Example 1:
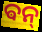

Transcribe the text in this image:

ଵନ୍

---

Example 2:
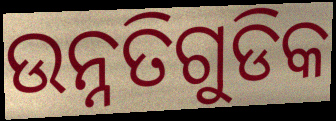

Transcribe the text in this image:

ଉନ୍ନତିଗୁଡିକ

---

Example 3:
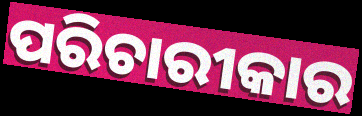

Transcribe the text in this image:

ପରିଚାରୀକାର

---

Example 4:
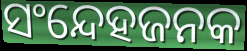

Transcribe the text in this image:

ସଂନ୍ଦେହଜନକ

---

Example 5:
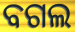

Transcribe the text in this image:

ବଗଲ